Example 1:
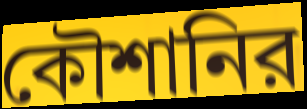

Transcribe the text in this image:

কৌশানির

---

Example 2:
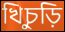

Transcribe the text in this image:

খিচুড়ি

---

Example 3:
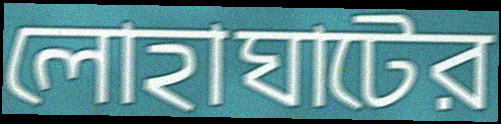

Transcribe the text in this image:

লোহাঘাটের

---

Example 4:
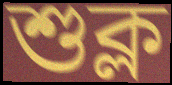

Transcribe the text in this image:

শুক্ল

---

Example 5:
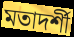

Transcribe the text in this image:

মতাদর্শী